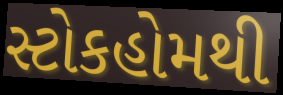
સ્ટોકહોમથી